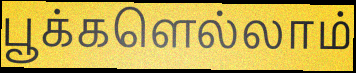
பூக்களெல்லாம்